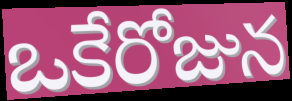
ఒకేరోజున